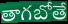
తాగబోతే